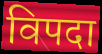
विपदा